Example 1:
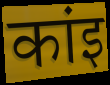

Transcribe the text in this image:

कांइ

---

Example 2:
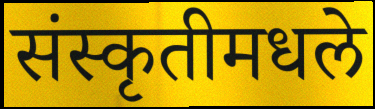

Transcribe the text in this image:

संस्कृतीमधले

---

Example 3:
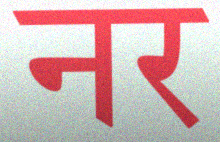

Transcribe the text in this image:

नर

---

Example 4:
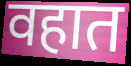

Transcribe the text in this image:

वहात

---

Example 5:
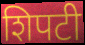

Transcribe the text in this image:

शिपटी